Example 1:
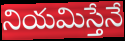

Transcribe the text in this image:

నియమిస్తేనే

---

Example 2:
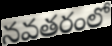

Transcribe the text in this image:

నవతరంలో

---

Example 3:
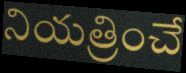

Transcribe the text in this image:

నియత్రించే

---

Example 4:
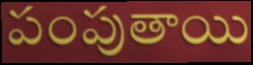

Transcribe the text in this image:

పంపుతాయి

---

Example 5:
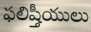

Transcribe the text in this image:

ఫలిష్తీయులు